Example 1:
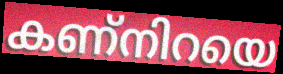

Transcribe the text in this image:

കണ്നിറയെ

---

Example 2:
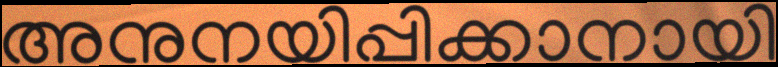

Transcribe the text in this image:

അനുനയിപ്പിക്കാനായി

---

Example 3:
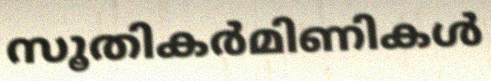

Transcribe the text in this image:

സൂതികർമിണികൾ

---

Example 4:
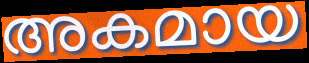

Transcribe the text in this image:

അകമായ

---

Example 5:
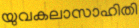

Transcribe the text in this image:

യുവകലാസാഹിതി